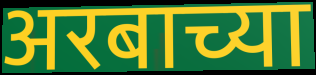
अरबाच्या